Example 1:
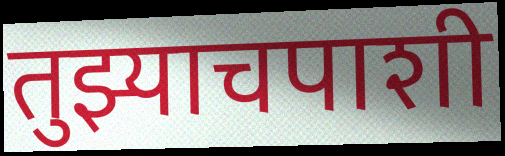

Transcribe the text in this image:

तुझ्याचपाशी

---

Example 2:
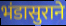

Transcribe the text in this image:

भंडासुराने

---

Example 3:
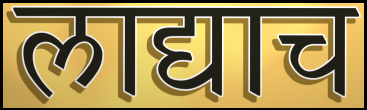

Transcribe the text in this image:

लाद्याच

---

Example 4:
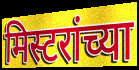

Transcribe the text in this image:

मिस्टरांच्या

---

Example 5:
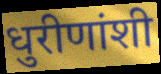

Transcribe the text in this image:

धुरीणांशी